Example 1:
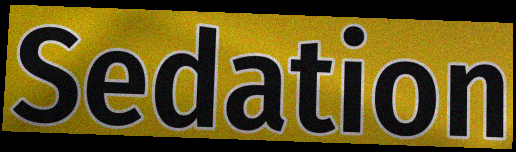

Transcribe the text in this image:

Sedation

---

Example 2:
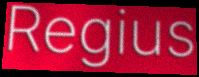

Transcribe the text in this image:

Regius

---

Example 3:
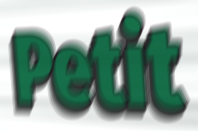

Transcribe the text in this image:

Petit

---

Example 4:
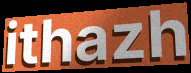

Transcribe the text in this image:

ithazh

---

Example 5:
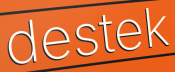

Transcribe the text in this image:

destek